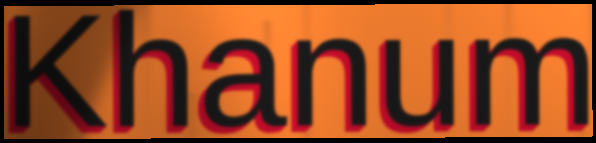
Khanum